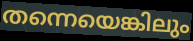
തന്നെയെങ്കിലും